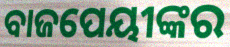
ବାଜପେୟୀଙ୍କର